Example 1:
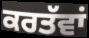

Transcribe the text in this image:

ਕਰਤੱਵਾਂ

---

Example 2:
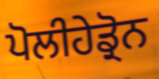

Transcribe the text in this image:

ਪੋਲੀਹੇਡ੍ਰੋਨ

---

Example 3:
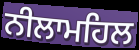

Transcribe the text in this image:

ਨੀਲਾਮਹਿਲ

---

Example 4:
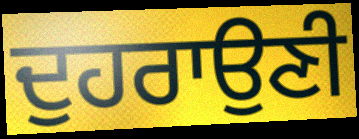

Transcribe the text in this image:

ਦੁਹਰਾਉਣੀ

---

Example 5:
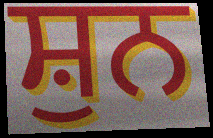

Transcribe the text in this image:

ਸ਼ੁਨ